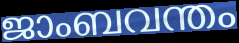
ജാംബവന്തം